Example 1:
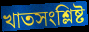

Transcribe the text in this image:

খাতসংশ্লিষ্ট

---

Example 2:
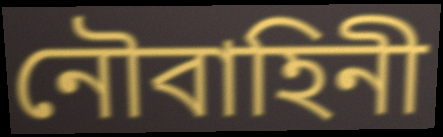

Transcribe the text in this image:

নৌবাহিনী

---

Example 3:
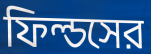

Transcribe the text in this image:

ফিল্ডসের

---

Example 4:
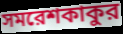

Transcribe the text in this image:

সমরেশকাকুর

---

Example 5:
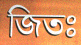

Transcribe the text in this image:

জিতঃ